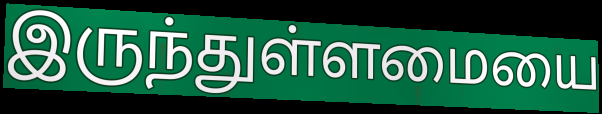
இருந்துள்ளமையை